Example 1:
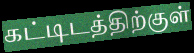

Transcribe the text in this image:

கட்டிடத்திற்குள்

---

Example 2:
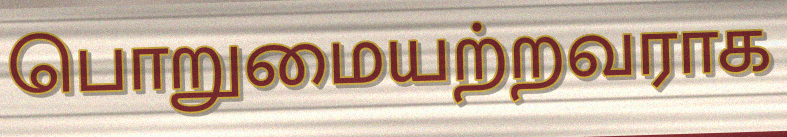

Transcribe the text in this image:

பொறுமையற்றவராக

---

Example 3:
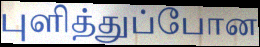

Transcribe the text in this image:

புளித்துப்போன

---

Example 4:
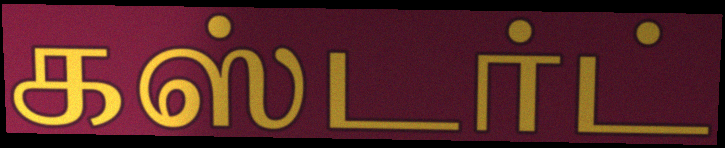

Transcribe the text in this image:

கஸ்டர்ட்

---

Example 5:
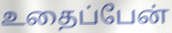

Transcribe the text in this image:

உதைப்பேன்